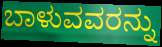
ಬಾಳುವವರನ್ನು